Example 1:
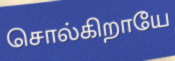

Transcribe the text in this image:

சொல்கிறாயே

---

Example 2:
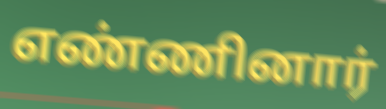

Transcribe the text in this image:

எண்ணினார்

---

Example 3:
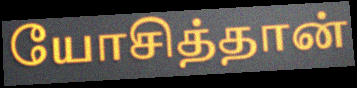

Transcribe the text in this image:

யோசித்தான்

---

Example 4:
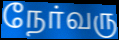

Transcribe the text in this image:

நேர்வரு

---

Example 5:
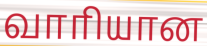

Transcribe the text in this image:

வாரியான